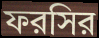
ফরসির